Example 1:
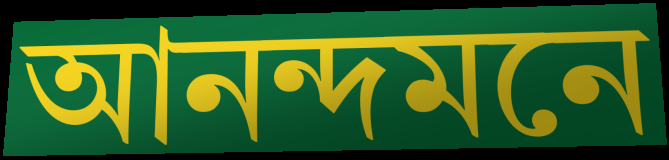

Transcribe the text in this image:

আনন্দমনে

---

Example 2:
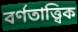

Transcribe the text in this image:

বৰ্ণতাত্ত্বিক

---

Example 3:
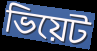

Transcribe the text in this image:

ভিয়েট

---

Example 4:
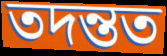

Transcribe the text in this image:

তদন্তত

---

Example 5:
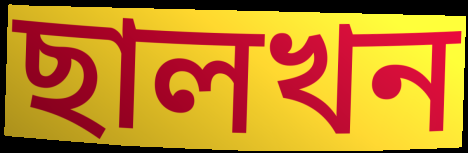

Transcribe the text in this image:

ছালখন